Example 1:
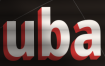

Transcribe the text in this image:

uba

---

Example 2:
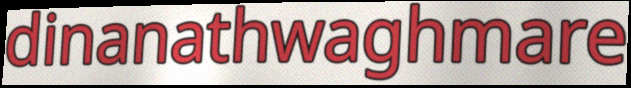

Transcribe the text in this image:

dinanathwaghmare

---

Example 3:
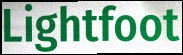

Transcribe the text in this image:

Lightfoot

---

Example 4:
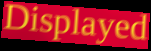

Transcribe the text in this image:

Displayed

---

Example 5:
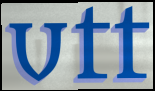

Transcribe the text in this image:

utt